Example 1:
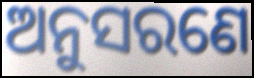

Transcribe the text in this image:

ଅନୁସରଣେ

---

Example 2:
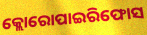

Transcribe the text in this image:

କ୍ଲୋରୋପାଇରିଫୋସ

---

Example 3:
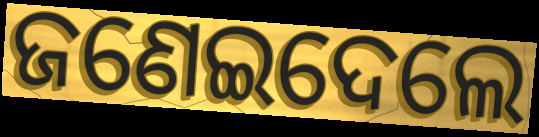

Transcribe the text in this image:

ଜଣେଇଦେଲେ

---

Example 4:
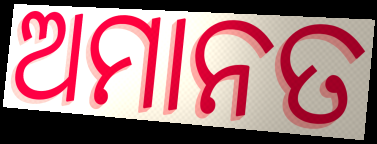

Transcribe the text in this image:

ଅମାନତ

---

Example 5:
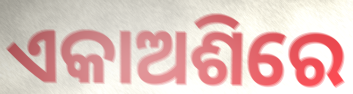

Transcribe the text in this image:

ଏକାଅଶିରେ